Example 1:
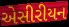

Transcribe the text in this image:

એસીરીયન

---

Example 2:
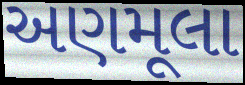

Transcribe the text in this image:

અણમૂલા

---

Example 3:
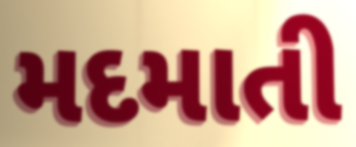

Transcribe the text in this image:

મદમાતી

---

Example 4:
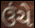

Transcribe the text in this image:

ઉંચે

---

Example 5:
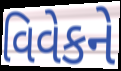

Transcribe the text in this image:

વિવેકને